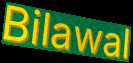
Bilawal